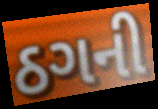
ઠગની